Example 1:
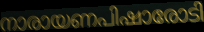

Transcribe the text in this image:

നാരായണപിഷാരോടി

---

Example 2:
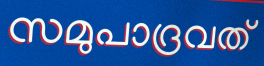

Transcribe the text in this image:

സമുപാദ്രവത്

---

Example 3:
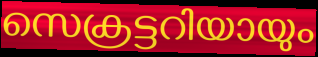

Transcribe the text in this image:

സെക്രട്ടറിയായും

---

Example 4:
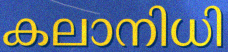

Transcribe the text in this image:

കലാനിധി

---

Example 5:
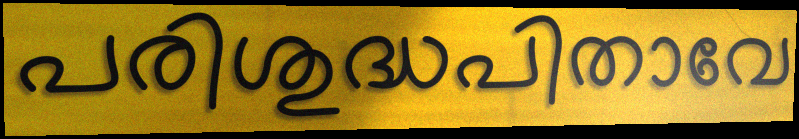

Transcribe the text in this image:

പരിശുദ്ധപിതാവേ